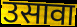
उसावा